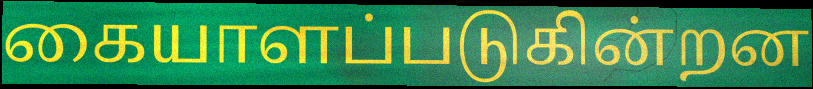
கையாளப்படுகின்றன